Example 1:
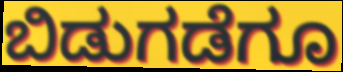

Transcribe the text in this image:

ಬಿಡುಗಡೆಗೂ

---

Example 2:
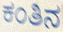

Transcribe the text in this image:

ಕಂತಿನ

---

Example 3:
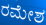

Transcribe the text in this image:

ರಮೇಶ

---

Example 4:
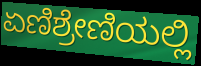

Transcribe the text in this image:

ಏಣಿಶ್ರೇಣಿಯಲ್ಲಿ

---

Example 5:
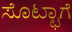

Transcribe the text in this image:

ಸೊಟ್ಟಾಗೆ